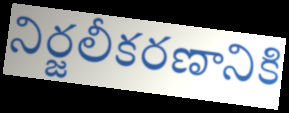
నిర్జలీకరణానికి